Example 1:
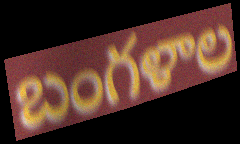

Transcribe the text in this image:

బంగళాల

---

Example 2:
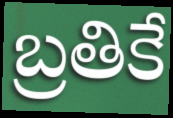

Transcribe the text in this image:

బ్రతికే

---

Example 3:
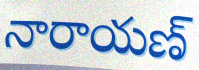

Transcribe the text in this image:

నారాయణ్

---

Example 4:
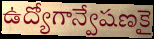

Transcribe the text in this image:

ఉద్యోగాన్వేషణకై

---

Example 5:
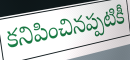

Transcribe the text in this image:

కనిపించినప్పటికీ